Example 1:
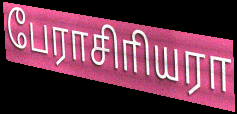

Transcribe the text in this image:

பேராசிரியரா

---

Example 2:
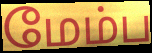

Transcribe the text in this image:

மேம்ப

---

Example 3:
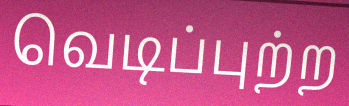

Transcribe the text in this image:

வெடிப்புற்ற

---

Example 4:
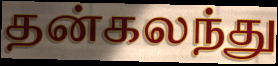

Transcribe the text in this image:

தன்கலந்து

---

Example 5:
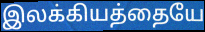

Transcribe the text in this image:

இலக்கியத்தையே